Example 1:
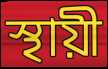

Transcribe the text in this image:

স্থায়ী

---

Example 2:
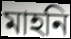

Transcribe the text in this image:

মাহনি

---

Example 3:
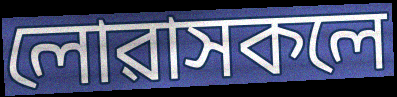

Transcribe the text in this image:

লোৱাসকলে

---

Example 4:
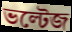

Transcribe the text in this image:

ভল্টেজ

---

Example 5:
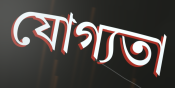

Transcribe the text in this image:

যোগ্য়তা